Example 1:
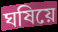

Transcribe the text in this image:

ঘষিয়ে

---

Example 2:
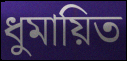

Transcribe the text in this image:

ধুমায়িত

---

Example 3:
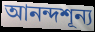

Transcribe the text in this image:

আনন্দশূন্য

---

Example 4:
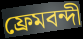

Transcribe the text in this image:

ফ্রেমবন্দী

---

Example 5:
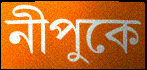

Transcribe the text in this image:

নীপুকে